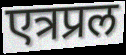
एत्रप्रल